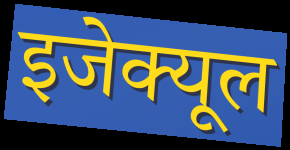
इजेक्यूल